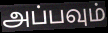
அப்பவும்